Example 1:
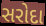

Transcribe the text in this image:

સરોદા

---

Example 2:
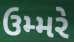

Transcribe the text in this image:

ઉમ્મરે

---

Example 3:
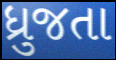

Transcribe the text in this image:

ધ્રુજતા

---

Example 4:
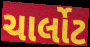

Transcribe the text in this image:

ચાર્લોટ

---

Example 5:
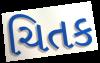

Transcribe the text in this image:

ચિતક